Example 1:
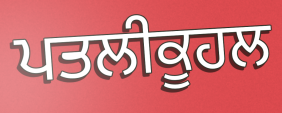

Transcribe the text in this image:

ਪਤਲੀਕੂਹਲ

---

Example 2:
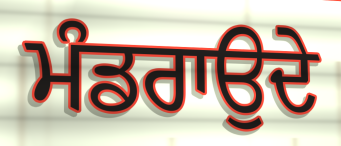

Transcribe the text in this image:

ਮੰਡਰਾਉਦੇ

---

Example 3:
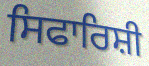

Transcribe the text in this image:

ਸਿਫਾਰਿਸ਼ੀ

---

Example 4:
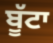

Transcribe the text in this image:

ਬੂੱਟਾ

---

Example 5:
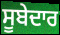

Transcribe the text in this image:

ਸੂਬੇਦਾਰ